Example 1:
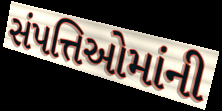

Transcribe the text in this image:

સંપત્તિઓમાંની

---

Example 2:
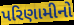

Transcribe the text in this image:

પરિણામીનો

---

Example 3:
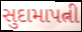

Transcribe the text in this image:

સુદામાપત્ની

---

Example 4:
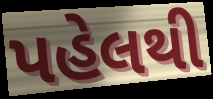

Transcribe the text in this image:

પહેલથી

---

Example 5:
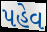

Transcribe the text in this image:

પહેવ